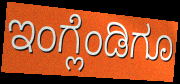
ಇಂಗ್ಲೆಂಡಿಗೂ